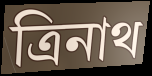
ত্রিনাথ